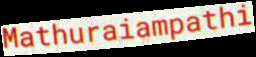
Mathuraiampathi